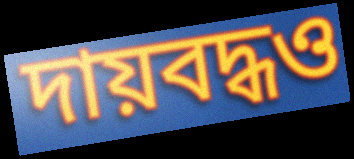
দায়বদ্ধও